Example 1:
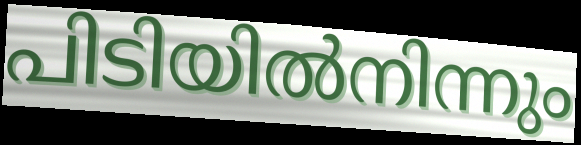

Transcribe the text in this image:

പിടിയിൽനിന്നും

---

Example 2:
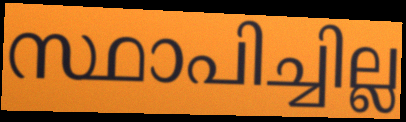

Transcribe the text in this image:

സ്ഥാപിച്ചില്ല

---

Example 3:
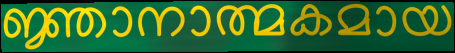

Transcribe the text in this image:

ജ്ഞാനാത്മകമായ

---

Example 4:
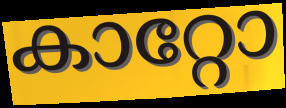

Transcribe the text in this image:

കാറ്റോ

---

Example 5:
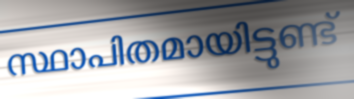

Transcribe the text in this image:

സ്ഥാപിതമായിട്ടുണ്ട്